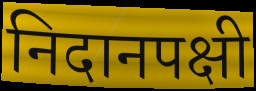
निदानपक्षी